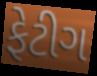
ફેટીગ